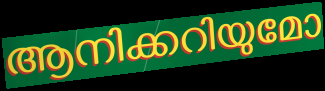
ആനിക്കറിയുമോ